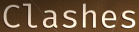
Clashes